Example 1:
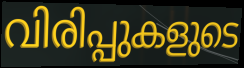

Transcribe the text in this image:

വിരിപ്പുകളുടെ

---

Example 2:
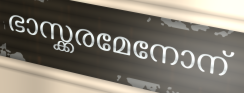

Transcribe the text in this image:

ഭാസ്ക്കരമേനോന്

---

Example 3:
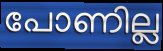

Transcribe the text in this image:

പോണില്ല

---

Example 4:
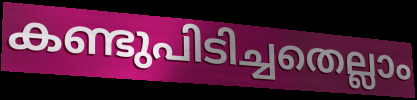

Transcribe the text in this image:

കണ്ടുപിടിച്ചതെല്ലാം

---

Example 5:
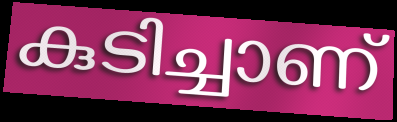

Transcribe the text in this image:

കുടിച്ചാണ്